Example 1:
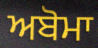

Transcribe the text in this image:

ਅਬੋਮਾ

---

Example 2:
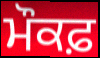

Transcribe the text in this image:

ਮੌਕਫ਼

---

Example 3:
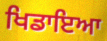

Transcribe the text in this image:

ਖਿਡਾਇਆ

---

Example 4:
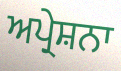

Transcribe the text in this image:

ਅਪ੍ਰੇਸ਼ਨਾ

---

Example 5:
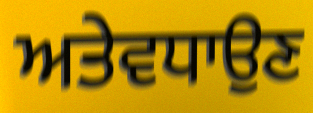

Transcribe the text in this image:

ਅਤੇਵਧਾਉਣ